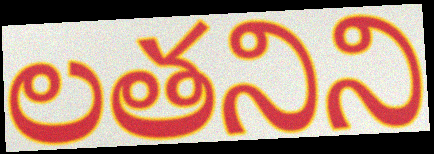
లతనిని